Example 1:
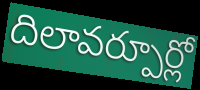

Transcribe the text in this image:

దిలావర్పూర్లో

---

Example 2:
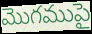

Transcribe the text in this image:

మొగముపై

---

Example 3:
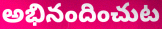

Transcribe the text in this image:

అభినందించుట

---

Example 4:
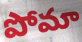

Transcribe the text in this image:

పోమా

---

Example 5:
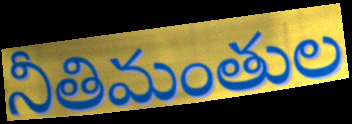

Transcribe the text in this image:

నీతిమంతుల